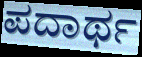
ಪದಾರ್ಥ